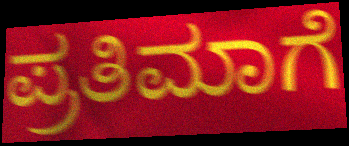
ಪ್ರತಿಮಾಗೆ